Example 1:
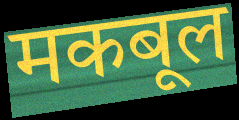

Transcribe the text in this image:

मकबूल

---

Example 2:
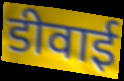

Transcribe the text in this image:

डीवाई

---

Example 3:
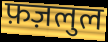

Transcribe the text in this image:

फ़ज़लुल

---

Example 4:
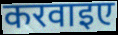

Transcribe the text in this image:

करवाइए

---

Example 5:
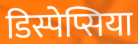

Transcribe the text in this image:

डिस्पेप्सिया